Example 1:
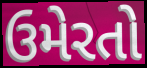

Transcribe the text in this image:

ઉમેરતો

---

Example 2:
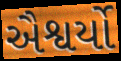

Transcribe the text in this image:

ઐશ્વર્યો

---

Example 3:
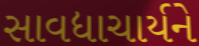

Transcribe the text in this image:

સાવદ્યાચાર્યને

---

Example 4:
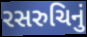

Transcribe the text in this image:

રસરુચિનું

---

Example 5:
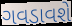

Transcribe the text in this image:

ગવડાવશે